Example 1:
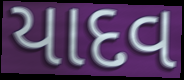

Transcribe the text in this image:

યાદવ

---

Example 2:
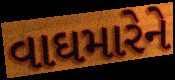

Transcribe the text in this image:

વાઘમારેને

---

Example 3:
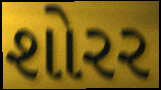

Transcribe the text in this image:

શોરર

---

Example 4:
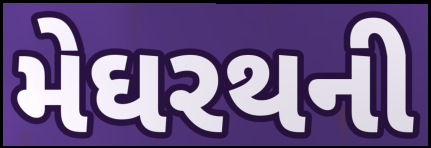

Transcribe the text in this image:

મેઘરથની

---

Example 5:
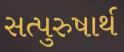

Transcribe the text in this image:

સત્પુરુષાર્થ